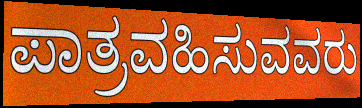
ಪಾತ್ರವಹಿಸುವವರು